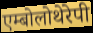
एम्बोलोथेरेपी